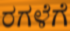
ರಗಳೆಗೆ